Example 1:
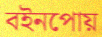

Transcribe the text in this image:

বইনপোয়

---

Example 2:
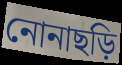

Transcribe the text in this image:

নোনাছড়ি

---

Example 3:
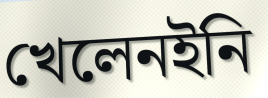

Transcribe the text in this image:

খেলেনইনি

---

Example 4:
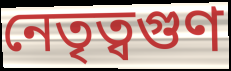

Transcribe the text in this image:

নেতৃত্বগুণ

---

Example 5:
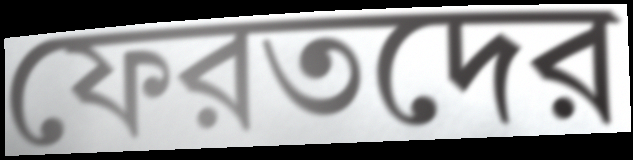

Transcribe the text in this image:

ফেরতদের